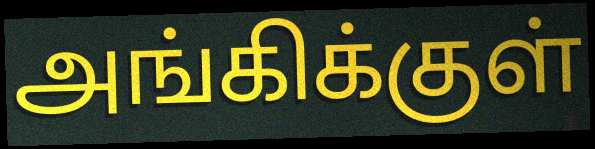
அங்கிக்குள்